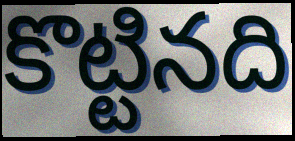
కొట్టినది